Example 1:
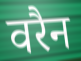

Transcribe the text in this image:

वरैन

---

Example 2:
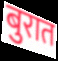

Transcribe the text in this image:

बुरात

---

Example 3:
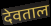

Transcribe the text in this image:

देवताल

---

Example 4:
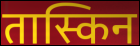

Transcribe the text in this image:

तास्किन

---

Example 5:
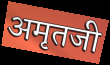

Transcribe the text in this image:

अमृतजी